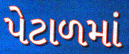
પેટાળમાં